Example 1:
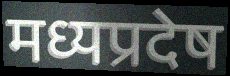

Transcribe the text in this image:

मध्यप्रदेष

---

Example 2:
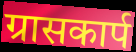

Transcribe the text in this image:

ग्रासकार्प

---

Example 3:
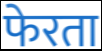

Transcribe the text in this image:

फेरता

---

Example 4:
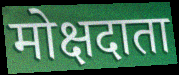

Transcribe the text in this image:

मोक्षदाता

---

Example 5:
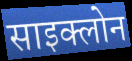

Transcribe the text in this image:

साइक्लोन